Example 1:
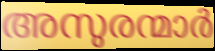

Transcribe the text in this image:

അസുരന്മാർ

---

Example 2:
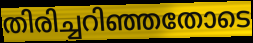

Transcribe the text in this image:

തിരിച്ചറിഞ്ഞതോടെ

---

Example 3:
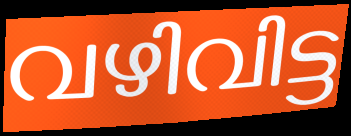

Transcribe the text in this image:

വഴിവിട്ട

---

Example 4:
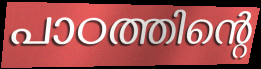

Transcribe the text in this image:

പാഠത്തിന്റെ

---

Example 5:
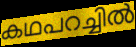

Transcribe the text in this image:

കഥപറച്ചിൽ